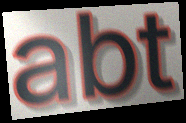
abt